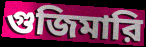
গুজিমারি